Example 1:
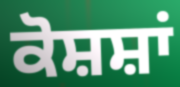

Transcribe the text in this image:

ਕੋਸ਼ਸ਼ਾਂ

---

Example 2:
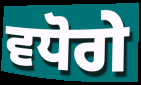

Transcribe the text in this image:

ਵਧੋਗੇ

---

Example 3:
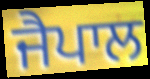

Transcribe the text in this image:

ਜੈਪਾਲ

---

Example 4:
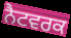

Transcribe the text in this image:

ਨੈਟਵਰਕ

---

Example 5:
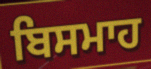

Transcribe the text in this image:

ਬਿਸਮਾਹ